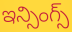
ఇన్సింగ్స్